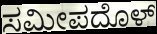
ಸಮೀಪದೊಳ್